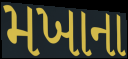
મખાના